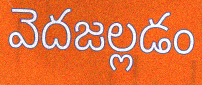
వెదజల్లడం